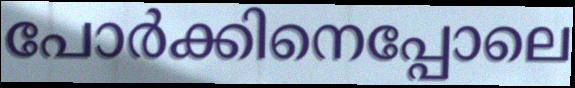
പോർക്കിനെപ്പോലെ